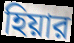
হিয়ার